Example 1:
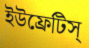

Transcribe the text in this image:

ইউফ্রেটিস্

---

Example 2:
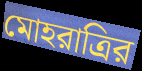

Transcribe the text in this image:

মোহরাত্রির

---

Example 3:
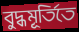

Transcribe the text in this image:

বুদ্ধমূর্তিতে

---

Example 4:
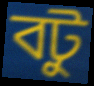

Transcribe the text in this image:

বটু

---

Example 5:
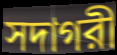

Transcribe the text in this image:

সদাগরী